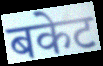
बकेट